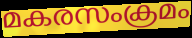
മകരസംക്രമം